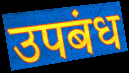
उपबंध